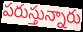
పరుస్తున్నారు